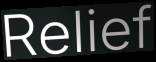
Relief